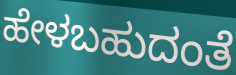
ಹೇಳಬಹುದಂತೆ